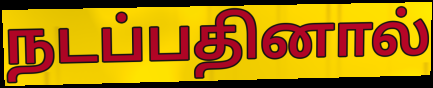
நடப்பதினால்